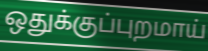
ஒதுக்குப்புறமாய்